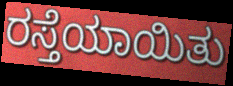
ರಸ್ತೆಯಾಯಿತು